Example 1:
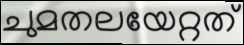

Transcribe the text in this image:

ചുമതലയേറ്റത്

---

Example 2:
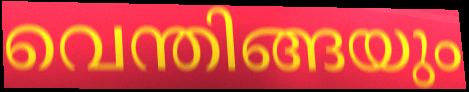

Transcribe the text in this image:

വെന്തിങ്ങയും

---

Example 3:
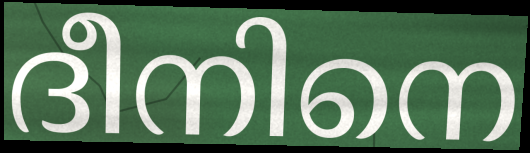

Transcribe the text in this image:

ദീനിനെ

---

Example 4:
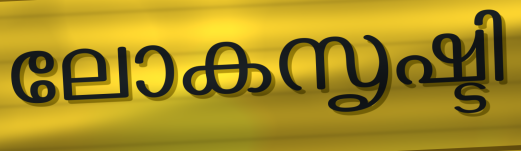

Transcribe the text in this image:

ലോകസൃഷ്ടി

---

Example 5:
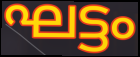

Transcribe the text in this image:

ഘട്ടം